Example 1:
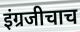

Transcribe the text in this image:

इंग्रजीचाच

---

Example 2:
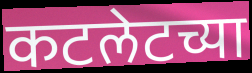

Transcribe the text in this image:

कटलेटच्या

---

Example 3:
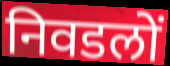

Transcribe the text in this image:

निवडलों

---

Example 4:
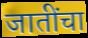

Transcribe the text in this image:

जातींचा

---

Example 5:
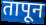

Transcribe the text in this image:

तापून